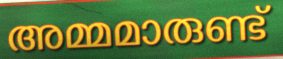
അമ്മമാരുണ്ട്